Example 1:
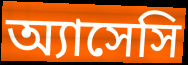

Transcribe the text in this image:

অ্যাসেসি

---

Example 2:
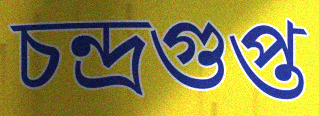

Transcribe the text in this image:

চন্দ্রগুপ্ত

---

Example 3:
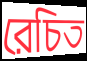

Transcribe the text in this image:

রেচিত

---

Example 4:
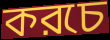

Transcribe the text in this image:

করচে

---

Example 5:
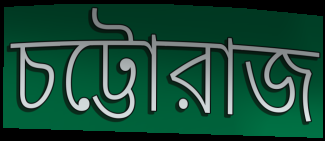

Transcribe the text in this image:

চট্টোরাজ